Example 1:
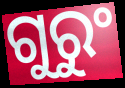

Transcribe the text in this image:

ଗୁରୁଂ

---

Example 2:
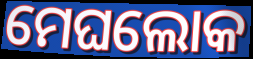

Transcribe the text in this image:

ମେଘଲୋକ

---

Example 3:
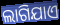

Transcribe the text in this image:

ଲାଗିଯାଏ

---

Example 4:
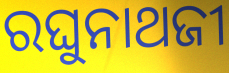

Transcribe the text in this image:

ରଘୁନାଥଜୀ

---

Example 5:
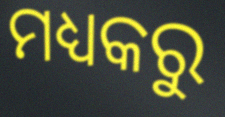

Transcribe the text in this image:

ମଧ୍ୟକରୁ